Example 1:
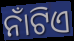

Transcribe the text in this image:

ନାଁଟିଏ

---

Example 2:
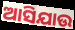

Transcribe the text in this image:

ଆସିଯାଉ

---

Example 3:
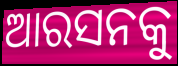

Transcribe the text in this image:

ଆରସନକୁ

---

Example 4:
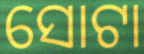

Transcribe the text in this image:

ସୋଟା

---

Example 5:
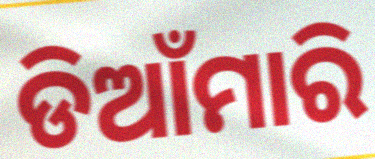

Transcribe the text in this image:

ଡିଆଁମାରି